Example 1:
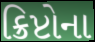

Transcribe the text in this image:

ક્રિપ્ટોના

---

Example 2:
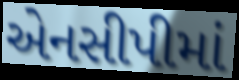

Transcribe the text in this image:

એનસીપીમાં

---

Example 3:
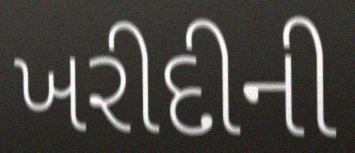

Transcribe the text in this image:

ખરીદીની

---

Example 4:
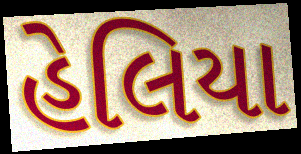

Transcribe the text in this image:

હેલિયા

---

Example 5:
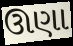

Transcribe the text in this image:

ઊણા